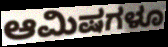
ಆಮಿಷಗಳೂ